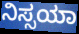
ನಿಸ್ಸಯಾ